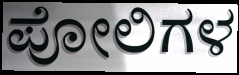
ಪೋಲಿಗಳ